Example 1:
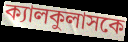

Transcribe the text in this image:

ক্যালকুলাসকে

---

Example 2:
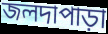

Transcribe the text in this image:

জলদাপাড়া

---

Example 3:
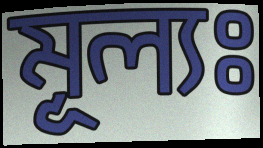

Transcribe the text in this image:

মূল্যঃ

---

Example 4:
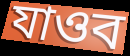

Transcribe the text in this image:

যাওব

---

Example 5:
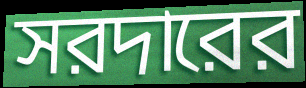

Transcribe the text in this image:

সরদারের